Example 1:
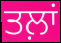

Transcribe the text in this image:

ਤਲ਼ਾਂ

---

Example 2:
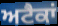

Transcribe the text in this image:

ਅਟੈਕਾਂ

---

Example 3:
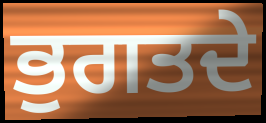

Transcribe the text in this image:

ਭੁਗਤਦੇ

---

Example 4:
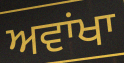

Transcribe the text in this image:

ਅਵਾਂਖਾ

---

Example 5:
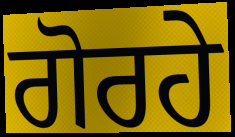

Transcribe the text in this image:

ਗੋਰਹੇ